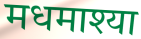
मधमाश्‍या